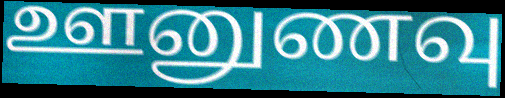
ஊனுணவு